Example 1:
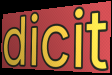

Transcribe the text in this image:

dicit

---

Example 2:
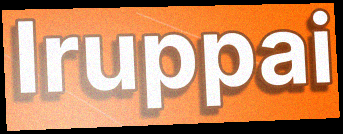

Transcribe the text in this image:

Iruppai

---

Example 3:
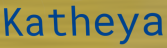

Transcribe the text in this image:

Katheya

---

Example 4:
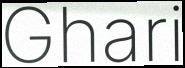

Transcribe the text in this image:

Ghari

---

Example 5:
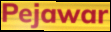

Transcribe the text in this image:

Pejawar